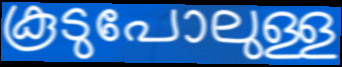
കൂടുപോലുള്ള